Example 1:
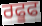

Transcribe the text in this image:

ਰਫੂਫ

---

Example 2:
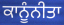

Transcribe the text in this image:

ਕਾਨੂੰਨੀਤਾ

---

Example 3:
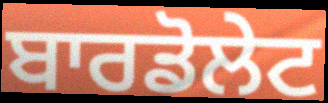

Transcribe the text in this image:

ਬਾਰਡੋਲੇਟ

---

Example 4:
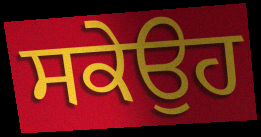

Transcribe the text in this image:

ਸਕੇਉਹ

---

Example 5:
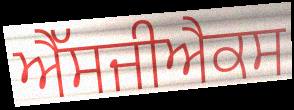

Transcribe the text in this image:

ਐੱਸਜੀਐਕਸ